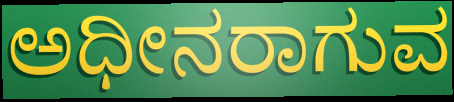
ಅಧೀನರಾಗುವ